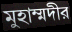
মুহাম্মদীর